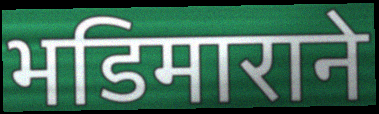
भडिमाराने